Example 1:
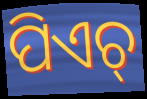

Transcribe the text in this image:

ପିଏଚ୍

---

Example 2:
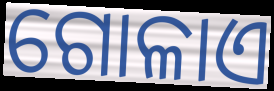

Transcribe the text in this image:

ଗୋଳାଏ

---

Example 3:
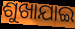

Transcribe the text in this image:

ଶୁଖାଯାଇ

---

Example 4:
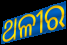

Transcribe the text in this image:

ଥଳୀର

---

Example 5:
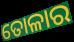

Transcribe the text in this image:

ତୋଳାର